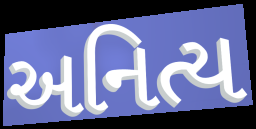
અનિત્ય